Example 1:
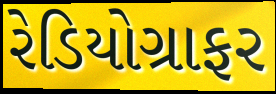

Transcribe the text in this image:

રેડિયોગ્રાફર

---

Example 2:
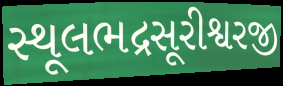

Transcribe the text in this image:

સ્થૂલભદ્રસૂરીશ્વરજી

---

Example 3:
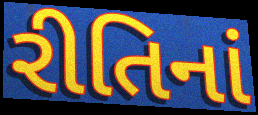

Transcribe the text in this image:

રીતિનાં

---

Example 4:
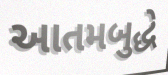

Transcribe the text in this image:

આતમબુદ્ધે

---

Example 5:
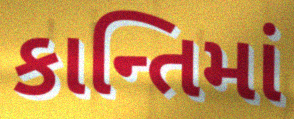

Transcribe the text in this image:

કાન્તિમાં